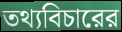
তথ্যবিচারের